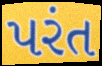
પરંત